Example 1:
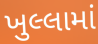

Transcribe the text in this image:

ખુલ્લામાં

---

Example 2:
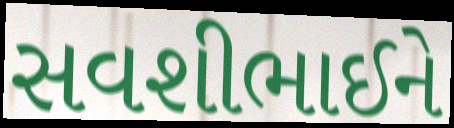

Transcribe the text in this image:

સવશીભાઈને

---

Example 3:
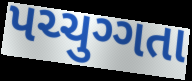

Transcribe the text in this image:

પચ્ચુગ્ગતા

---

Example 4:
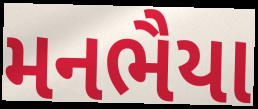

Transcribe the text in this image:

મનભૈયા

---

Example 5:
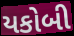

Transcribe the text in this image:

યકોબી